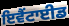
ਇਵੈਂਟਾਈਡ